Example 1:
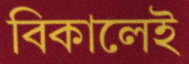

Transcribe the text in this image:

বিকালেই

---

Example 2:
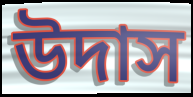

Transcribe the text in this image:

উদাস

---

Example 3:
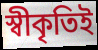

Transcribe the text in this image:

স্বীকৃতিই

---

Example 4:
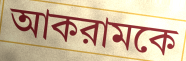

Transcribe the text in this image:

আকরামকে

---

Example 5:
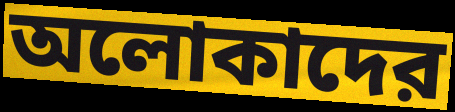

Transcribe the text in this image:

অলোকাদের